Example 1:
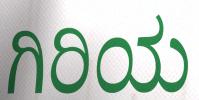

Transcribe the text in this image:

ಗಿರಿಯ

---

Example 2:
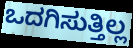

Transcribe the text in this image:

ಒದಗಿಸುತ್ತಿಲ್ಲ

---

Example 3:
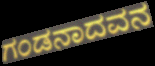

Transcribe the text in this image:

ಗಂಡನಾದವನ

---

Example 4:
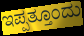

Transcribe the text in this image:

ಇಪ್ಪತ್ತೂಂದು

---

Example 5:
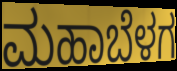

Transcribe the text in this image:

ಮಹಾಬೆಳಗ